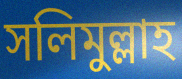
সলিমুল্লাহ